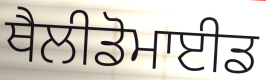
ਥੈਲੀਡੋਮਾਈਡ